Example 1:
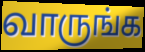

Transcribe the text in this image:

வாருங்க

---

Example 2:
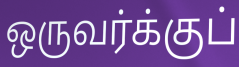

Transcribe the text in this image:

ஒருவர்க்குப்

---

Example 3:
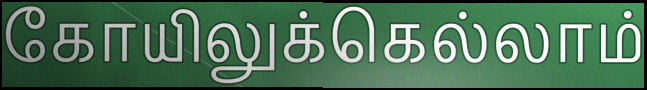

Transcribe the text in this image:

கோயிலுக்கெல்லாம்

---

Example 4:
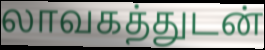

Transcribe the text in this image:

லாவகத்துடன்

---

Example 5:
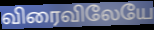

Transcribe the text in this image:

விரைவிலேயே